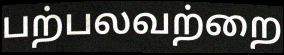
பற்பலவற்றை